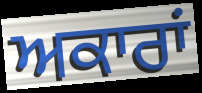
ਅਕਾਰਾਂ